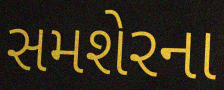
સમશેરના